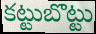
కట్టుబొట్టు